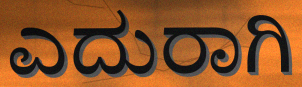
ಎದುರಾಗಿ